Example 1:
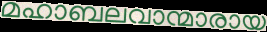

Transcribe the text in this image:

മഹാബലവാന്മാരായ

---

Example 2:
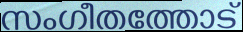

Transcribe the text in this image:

സംഗീതത്തോട്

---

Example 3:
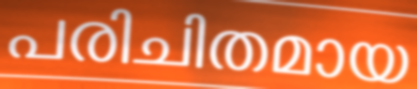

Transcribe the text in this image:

പരിചിതമായ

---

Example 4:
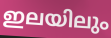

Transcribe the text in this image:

ഇലയിലും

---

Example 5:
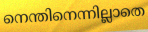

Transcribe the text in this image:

നെന്തിനെന്നില്ലാതെ